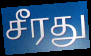
சீரது